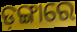
ଡ଼ଙ୍ଗାରେ